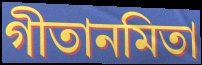
গীতানমিতা